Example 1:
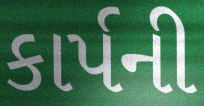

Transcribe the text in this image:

કાર્પની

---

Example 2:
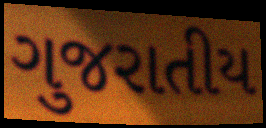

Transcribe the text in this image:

ગુજરાતીય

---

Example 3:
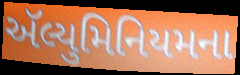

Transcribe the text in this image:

ઍલ્યુમિનિયમના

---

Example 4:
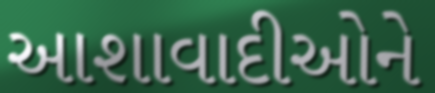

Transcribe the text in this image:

આશાવાદીઓને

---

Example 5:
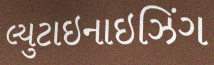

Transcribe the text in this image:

લ્યુટાઇનાઇઝિંગ